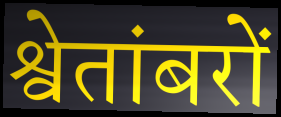
श्वेतांबरों